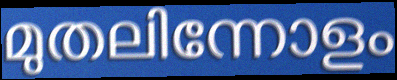
മുതലിന്നോളം